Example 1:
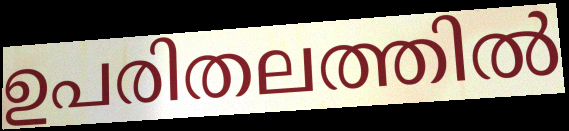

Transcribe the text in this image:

ഉപരിതലത്തിൽ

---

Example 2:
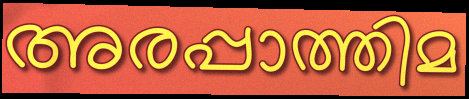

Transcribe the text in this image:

അരപ്പാത്തിമ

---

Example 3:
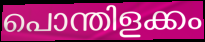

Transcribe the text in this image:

പൊന്തിളക്കം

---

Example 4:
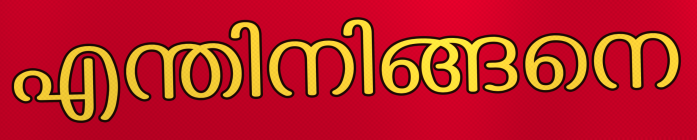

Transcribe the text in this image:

എന്തിനിങ്ങനെ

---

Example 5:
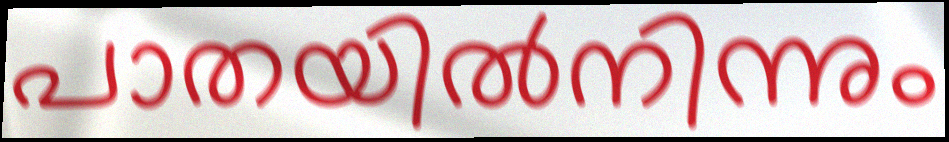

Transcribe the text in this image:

പാതയിൽനിന്നും